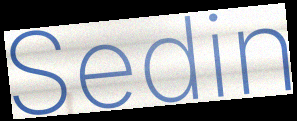
Sedin